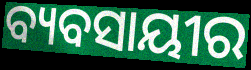
ବ୍ୟବସାୟୀର